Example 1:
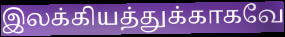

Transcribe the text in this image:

இலக்கியத்துக்காகவே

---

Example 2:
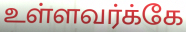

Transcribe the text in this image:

உள்ளவர்க்கே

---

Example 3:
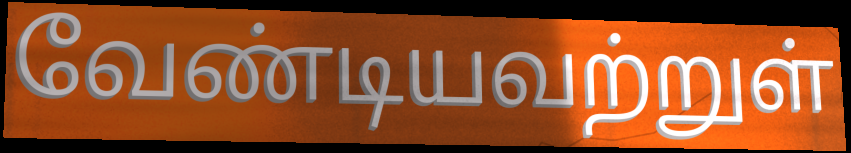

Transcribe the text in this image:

வேண்டியவற்றுள்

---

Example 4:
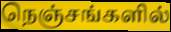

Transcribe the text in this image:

நெஞ்சங்களில்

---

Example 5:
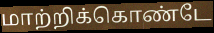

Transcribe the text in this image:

மாற்றிக்கொண்டே